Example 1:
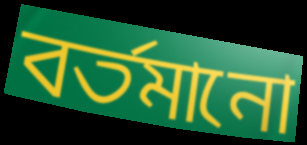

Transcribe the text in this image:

বৰ্তমানো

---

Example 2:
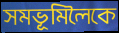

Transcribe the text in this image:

সমভূমিলৈকে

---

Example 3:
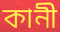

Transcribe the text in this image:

কানী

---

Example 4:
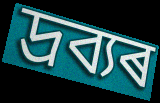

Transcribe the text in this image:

দ্ৰব্যৰ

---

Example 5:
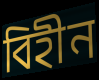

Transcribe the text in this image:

বিহীন